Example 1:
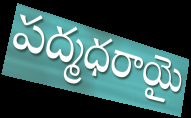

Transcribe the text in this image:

పద్మధరాయై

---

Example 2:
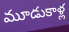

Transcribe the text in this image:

మూడుకాళ్ల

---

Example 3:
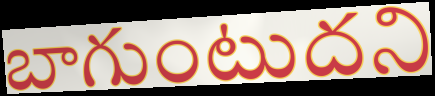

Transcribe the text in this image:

బాగుంటుదని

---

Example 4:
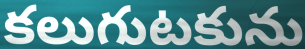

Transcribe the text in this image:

కలుగుటకును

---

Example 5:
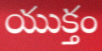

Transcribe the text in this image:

యుక్తం